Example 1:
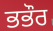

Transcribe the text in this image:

ਭਭੌਰ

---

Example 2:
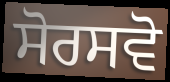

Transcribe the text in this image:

ਸੋਰਸਵੋ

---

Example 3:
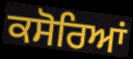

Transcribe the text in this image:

ਕਸੋਰਿਆਂ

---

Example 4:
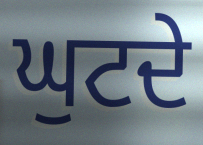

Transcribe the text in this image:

ਘੁਟਦੇ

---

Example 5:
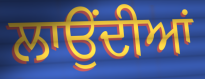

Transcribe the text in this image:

ਲਾਉੰਦੀਆਂ